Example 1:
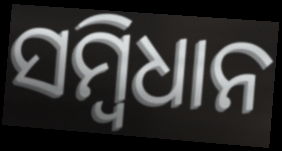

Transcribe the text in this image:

ସମ୍ୱିଧାନ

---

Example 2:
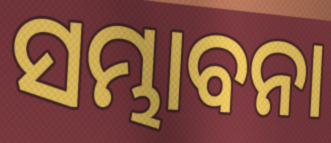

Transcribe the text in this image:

ସମ୍ଭାବନା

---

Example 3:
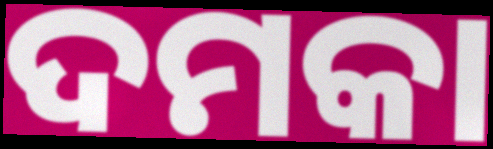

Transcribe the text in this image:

ଦମକା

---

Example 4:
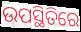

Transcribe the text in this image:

ଉପସ୍ଥିତିରେ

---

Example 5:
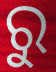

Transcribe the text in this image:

ରୁ